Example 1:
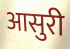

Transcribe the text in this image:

आसुरी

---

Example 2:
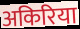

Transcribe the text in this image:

अकिरिया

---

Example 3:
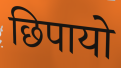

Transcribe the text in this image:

छिपायो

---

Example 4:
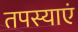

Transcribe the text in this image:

तपस्याएं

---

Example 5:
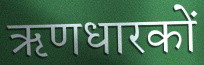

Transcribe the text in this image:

ऋणधारकों